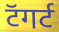
टॅगर्ट